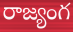
రాజ్యంగ